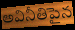
అవినీతిపైన